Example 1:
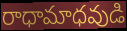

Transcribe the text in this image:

రాధామాధవుడి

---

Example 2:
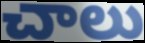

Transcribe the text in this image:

చాలు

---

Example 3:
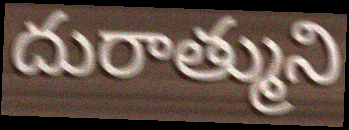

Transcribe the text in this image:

దురాత్ముని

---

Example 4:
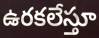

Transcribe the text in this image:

ఉరకలేస్తూ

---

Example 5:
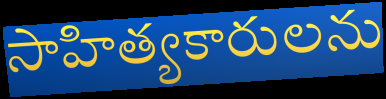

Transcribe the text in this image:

సాహిత్యకారులను